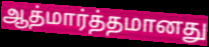
ஆத்மார்த்தமானது